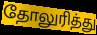
தோலுரித்து